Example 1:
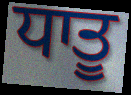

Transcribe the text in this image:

ਧਾਤੂ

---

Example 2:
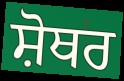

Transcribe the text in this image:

ਸ਼ੋਥਰ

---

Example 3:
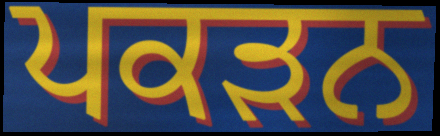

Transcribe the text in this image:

ਪਕੜਨ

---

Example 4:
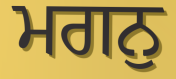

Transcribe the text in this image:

ਮਗਨੁ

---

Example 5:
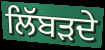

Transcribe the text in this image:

ਲਿੱਬੜਦੇ